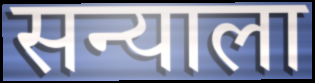
सन्याला